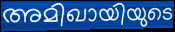
അമിഖായിയുടെ